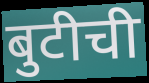
बुटीची